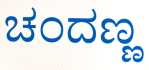
ಚಂದಣ್ಣ